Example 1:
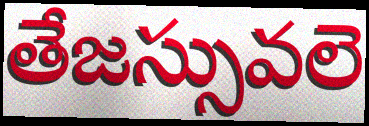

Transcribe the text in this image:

తేజస్సువలె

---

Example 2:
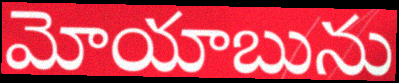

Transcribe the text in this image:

మోయాబును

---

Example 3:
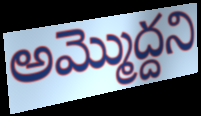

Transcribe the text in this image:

అమ్మొద్దని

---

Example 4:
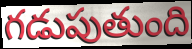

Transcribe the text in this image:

గడుపుతుంది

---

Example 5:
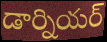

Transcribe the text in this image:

డార్నియర్